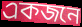
একজনে